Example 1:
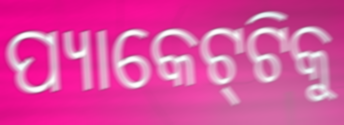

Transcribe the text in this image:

ପ୍ୟାକେଟ୍‌ଟିକୁ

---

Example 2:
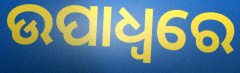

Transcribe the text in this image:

ଉପାଧ୍ଵରେ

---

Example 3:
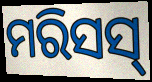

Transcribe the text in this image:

ମରିସସ୍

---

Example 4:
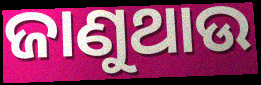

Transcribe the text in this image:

ଜାଣୁଥାଉ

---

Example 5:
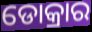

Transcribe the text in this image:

ଡୋକ୍ରାର